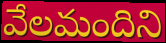
వేలమందిని